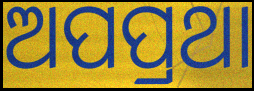
ଅପପ୍ରଥା